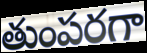
తుంపరగా